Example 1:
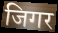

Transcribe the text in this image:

जिगर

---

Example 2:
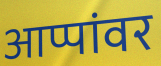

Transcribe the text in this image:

आप्पांवर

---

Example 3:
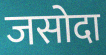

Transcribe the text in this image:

जसोदा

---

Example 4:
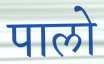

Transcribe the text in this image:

पालो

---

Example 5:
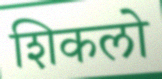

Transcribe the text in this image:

शिकलो